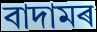
বাদামৰ